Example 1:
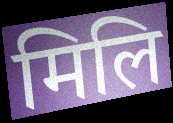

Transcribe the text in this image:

मिलि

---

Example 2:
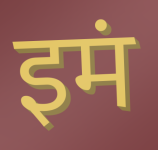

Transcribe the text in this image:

इमं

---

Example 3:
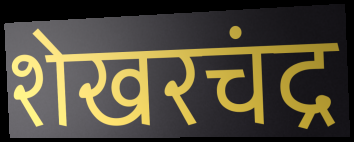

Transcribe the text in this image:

शेखरचंद्र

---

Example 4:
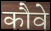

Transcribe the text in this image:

कौवे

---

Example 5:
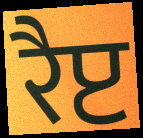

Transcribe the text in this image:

रैप्ट